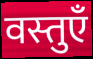
वस्‍तुएँ